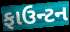
ફાઉન્ટન